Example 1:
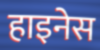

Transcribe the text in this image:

हाइनेस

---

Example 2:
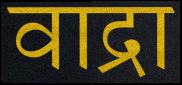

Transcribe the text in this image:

वाद्रा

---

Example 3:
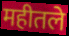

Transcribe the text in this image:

महीतले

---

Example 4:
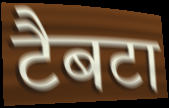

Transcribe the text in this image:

टैबटा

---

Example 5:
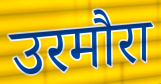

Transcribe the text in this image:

उरमौरा